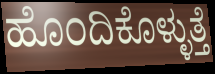
ಹೊಂದಿಕೊಳ್ಳುತ್ತೆ